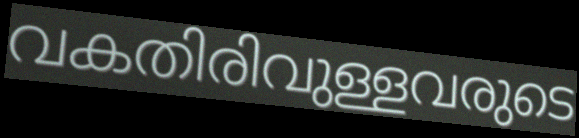
വകതിരിവുള്ളവരുടെ